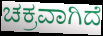
ಚಕ್ರವಾಗಿದೆ